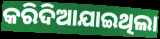
କରିଦିଆଯାଇଥିଲା